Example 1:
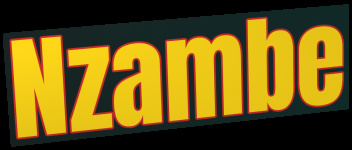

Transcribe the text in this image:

Nzambe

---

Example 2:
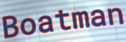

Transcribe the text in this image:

Boatman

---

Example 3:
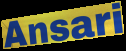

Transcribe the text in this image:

Ansari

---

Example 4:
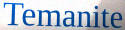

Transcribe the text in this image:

Temanite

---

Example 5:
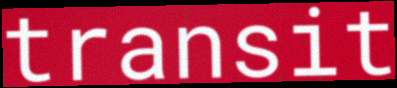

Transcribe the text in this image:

transit